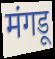
मंगडू